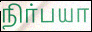
நிர்பயா